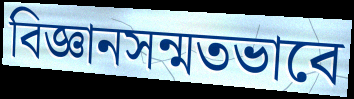
বিজ্ঞানসন্মতভাবে